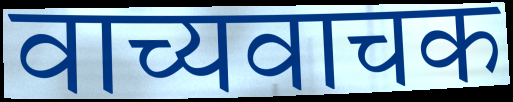
वाच्यवाचक